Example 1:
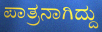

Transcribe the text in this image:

ಪಾತ್ರನಾಗಿದ್ದು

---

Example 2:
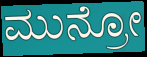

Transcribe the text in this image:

ಮುನ್ರೋ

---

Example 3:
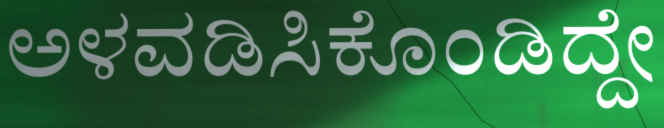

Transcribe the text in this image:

ಅಳವಡಿಸಿಕೊಂಡಿದ್ದೇ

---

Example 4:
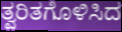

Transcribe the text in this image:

ತ್ವರಿತಗೊಳಿಸಿದ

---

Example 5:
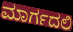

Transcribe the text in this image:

ಮಾರ್ಗದಲಿ